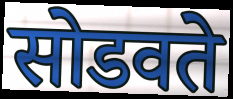
सोडवते